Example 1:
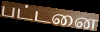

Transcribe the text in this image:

பட்டனை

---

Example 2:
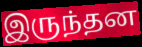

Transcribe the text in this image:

இருந்தன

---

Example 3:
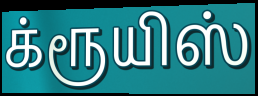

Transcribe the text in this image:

க்ரூயிஸ்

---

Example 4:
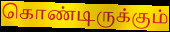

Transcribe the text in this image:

கொண்டிருக்கும்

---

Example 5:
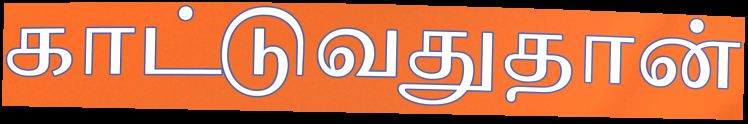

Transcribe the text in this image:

காட்டுவதுதான்